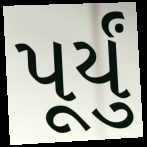
પૂર્યું